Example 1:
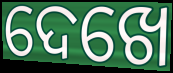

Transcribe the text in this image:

ଦେଖେ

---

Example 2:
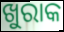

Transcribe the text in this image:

ଖୁରାକ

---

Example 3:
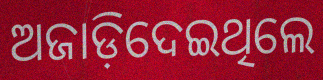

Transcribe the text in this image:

ଅଜାଡ଼ିଦେଇଥିଲେ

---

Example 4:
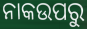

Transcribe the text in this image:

ନାକଉପରୁ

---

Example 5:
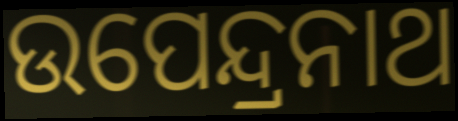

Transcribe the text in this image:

ଉପେନ୍ଦ୍ରନାଥ